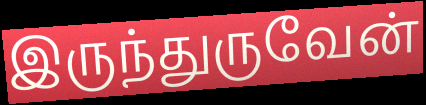
இருந்துருவேன்